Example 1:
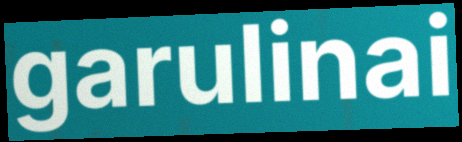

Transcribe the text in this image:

garulinai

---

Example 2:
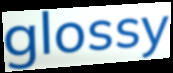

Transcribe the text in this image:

glossy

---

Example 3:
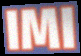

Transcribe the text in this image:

IMI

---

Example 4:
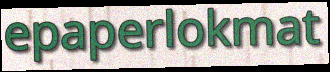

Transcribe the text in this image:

epaperlokmat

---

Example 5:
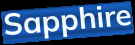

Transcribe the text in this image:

Sapphire